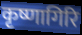
कृष्णागिरि